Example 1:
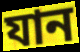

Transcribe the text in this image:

যান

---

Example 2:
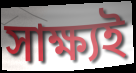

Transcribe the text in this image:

সাক্ষ্যই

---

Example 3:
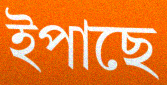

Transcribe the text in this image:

ইপাছে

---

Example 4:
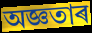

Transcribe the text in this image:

অজ্ঞতাৰ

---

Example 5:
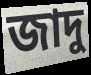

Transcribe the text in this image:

জাদু